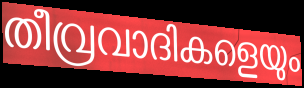
തീവ്രവാദികളെയും